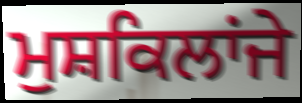
ਮੁਸ਼ਕਿਲਾਂਜੇ